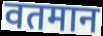
वतमान